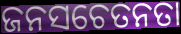
ଜନସଚେତନତା